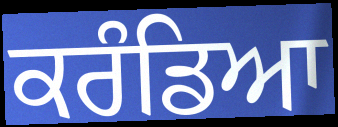
ਕਰੰਡਿਆ